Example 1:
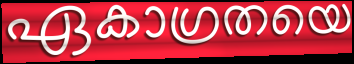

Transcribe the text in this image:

ഏകാഗ്രതയെ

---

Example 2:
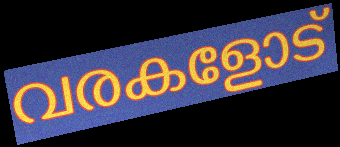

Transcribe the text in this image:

വരകളോട്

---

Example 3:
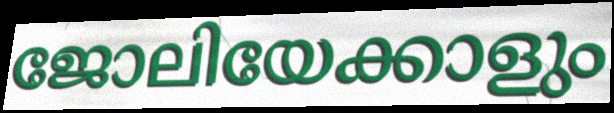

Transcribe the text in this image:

ജോലിയേക്കാളും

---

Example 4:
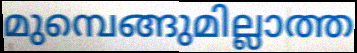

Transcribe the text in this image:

മുമ്പെങ്ങുമില്ലാത്ത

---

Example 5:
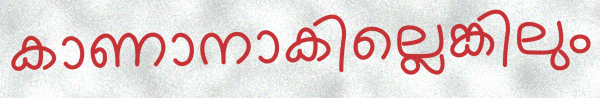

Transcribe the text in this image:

കാണാനാകില്ലെങ്കിലും